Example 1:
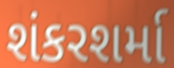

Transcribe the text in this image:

શંકરશર્મા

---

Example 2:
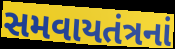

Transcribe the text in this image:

સમવાયતંત્રનાં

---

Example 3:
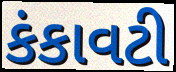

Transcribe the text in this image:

કંકાવટી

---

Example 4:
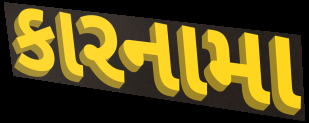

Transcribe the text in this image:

કારનામા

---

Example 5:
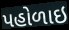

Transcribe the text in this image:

પહોળાઇ